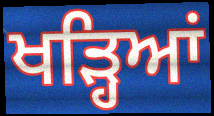
ਖੜ੍ਹਿਆਂ